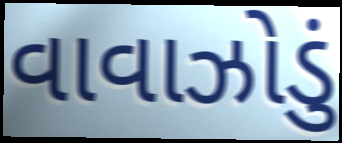
વાવાઝોડું